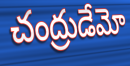
చంద్రుడేమో